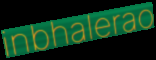
inbhalerao